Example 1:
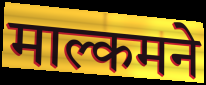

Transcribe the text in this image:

माल्कमने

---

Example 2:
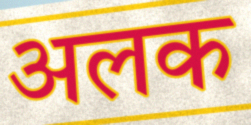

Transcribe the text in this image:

अलक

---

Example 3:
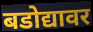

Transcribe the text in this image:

बडोद्यावर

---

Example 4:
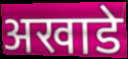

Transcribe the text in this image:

अखाडे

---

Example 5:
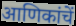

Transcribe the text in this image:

आणिकांचें